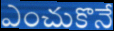
ఎంచుకొనే